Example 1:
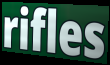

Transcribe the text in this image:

rifles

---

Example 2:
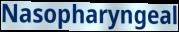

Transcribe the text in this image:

Nasopharyngeal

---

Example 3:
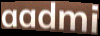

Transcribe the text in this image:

aadmi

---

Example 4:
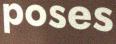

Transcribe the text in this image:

poses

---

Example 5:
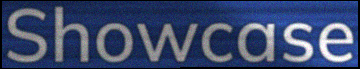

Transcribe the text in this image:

Showcase